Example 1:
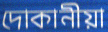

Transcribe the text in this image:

দোকানীয়া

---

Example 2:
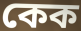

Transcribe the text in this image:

কেক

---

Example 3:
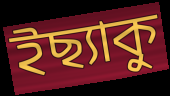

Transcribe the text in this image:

ইছ্যাকু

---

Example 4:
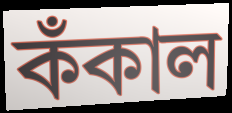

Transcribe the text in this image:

কঁকাল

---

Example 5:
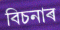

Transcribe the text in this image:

বিচনাৰ